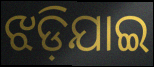
ଝଡ଼ିଯାଇ